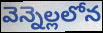
వెన్నెల్లలోన